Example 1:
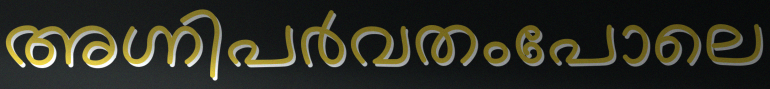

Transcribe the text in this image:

അഗ്നിപർവതംപോലെ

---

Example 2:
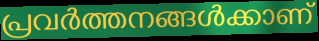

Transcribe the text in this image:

പ്രവർത്തനങ്ങൾക്കാണ്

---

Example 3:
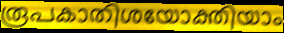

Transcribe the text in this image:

രൂപകാതിശയോക്തിയാം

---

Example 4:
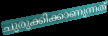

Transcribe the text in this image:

ചുരുക്കിക്കാണുന്നത്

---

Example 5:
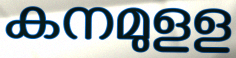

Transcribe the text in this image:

കനമുളള